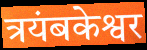
त्रयंबकेश्वर